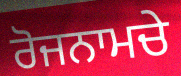
ਰੋਜਨਾਮਚੇ